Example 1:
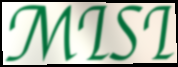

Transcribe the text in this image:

MISI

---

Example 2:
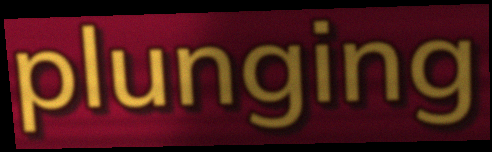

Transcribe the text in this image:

plunging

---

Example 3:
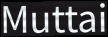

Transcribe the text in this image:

Muttai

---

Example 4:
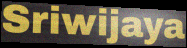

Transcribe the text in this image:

Sriwijaya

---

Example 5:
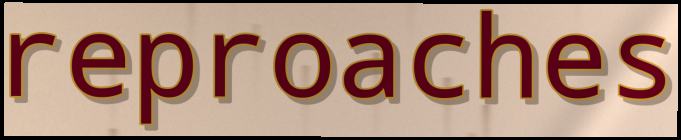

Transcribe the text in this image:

reproaches